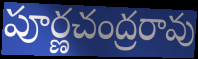
పూర్ణచంద్రరావు